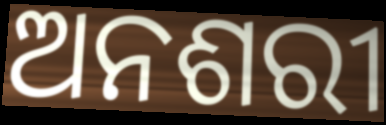
ଅନଶରୀ